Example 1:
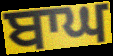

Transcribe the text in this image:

ਬਾਘ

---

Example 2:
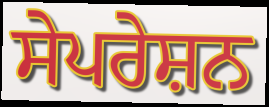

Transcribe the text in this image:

ਸੇਪਰੇਸ਼ਨ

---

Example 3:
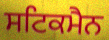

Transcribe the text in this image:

ਸਟਿਕਮੈਨ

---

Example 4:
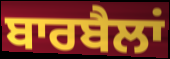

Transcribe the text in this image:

ਬਾਰਬੈਲਾਂ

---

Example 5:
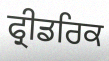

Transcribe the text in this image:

ਫ੍ਰੀਡਰਿਕ